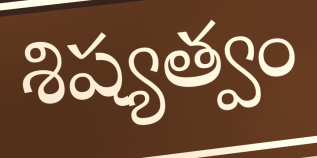
శిష్యత్వం